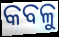
କବଳୁ